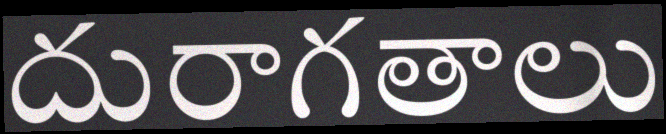
దురాగతాలు